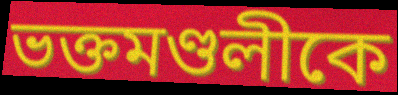
ভক্তমণ্ডলীকে